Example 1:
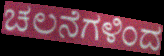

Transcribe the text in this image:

ಚಲನೆಗಳಿಂದ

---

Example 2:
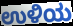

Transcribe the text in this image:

ಉಳಿಯ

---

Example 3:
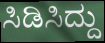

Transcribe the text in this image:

ಸಿಡಿಸಿದ್ದು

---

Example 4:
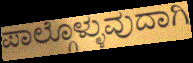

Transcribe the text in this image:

ಪಾಲ್ಗೊಳ್ಳುವುದಾಗಿ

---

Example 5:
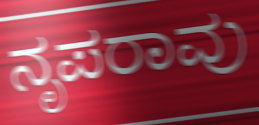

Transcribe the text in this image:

ನೃಪರಾವು